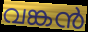
വങ്കൻ